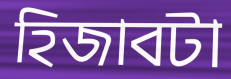
হিজাবটা